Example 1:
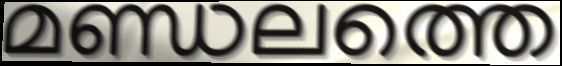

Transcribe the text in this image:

മണ്ഡലത്തെ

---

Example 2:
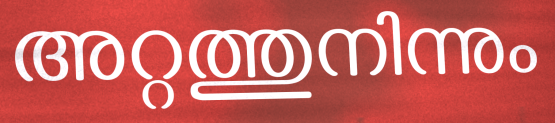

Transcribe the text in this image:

അറ്റത്തുനിന്നും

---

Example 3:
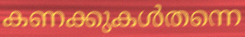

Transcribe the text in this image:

കണക്കുകൾതന്നെ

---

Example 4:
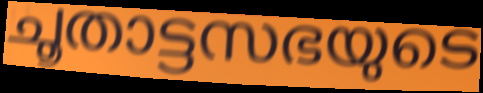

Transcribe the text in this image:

ചൂതാട്ടസഭയുടെ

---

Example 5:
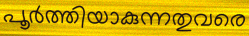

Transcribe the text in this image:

പൂർത്തിയാകുന്നതുവരെ